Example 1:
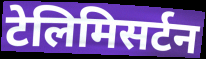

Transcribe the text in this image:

टेलिमिसर्टन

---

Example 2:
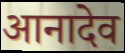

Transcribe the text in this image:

आनादेव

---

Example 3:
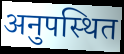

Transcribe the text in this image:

अनुपस्थित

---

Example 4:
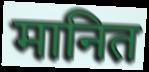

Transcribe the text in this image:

मानित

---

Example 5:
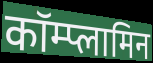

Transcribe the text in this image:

कॉम्प्लामिन